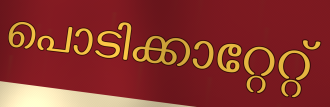
പൊടിക്കാറ്റേറ്റ്